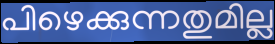
പിഴെക്കുന്നതുമില്ല